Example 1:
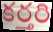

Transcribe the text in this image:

కర్తరి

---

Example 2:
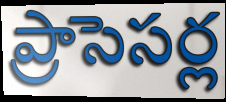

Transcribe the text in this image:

ప్రాసెసర్ల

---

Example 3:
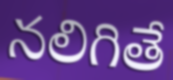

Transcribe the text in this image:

నలిగితే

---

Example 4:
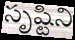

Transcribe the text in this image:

సృష్టిని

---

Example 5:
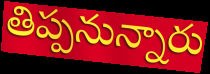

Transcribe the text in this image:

తిప్పనున్నారు